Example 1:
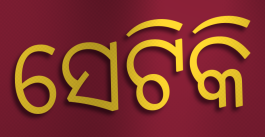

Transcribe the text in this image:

ସେଟିକି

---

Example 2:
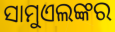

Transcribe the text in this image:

ସାମୁଏଲଙ୍କର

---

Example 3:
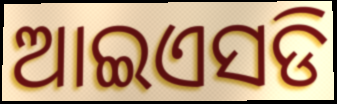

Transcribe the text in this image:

ଆଇଏସଡି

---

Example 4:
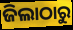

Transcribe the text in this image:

ଜିଲାଠାରୁ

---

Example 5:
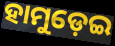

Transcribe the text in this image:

ହାମୁଡ଼େଇ